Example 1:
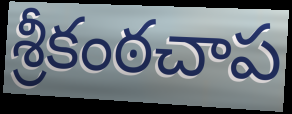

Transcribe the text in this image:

శ్రీకంఠచాప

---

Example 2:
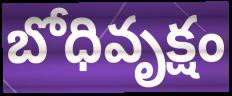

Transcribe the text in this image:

బోధివృక్షం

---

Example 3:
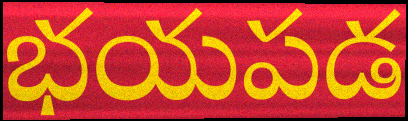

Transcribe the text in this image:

భయపడ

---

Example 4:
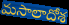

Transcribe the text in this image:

మసాలాదోశ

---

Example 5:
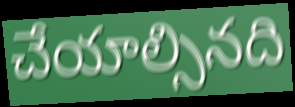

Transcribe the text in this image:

చేయాల్సినది